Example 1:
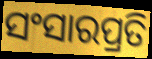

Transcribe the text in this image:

ସଂସାରପ୍ରତି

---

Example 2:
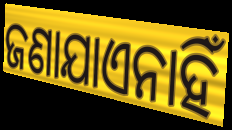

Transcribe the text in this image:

ଜଣାଯାଏନାହିଁ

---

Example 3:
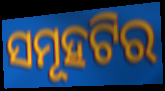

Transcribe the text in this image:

ସମୂହଟିର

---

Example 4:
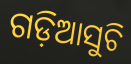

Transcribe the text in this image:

ଗଡ଼ିଆସୁଚି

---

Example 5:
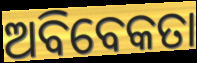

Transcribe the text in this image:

ଅବିବେକତା